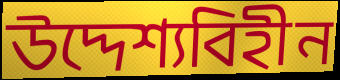
উদ্দেশ্যবিহীন